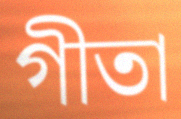
গীতা